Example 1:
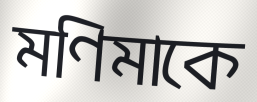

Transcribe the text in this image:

মণিমাকে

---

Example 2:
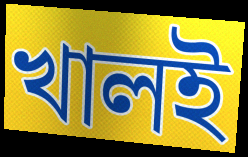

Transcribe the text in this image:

খালই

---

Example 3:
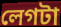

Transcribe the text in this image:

লেগটা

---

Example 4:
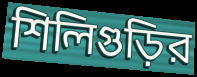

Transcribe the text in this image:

শিলিগুড়ির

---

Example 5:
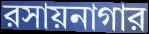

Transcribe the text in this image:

রসায়নাগার